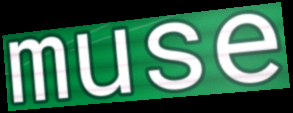
muse